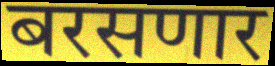
बरसणार